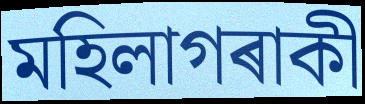
মহিলাগৰাকী